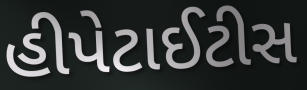
હીપેટાઈટીસ